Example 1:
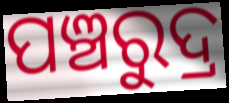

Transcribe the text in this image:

ପଞ୍ଚରୁଦ୍ର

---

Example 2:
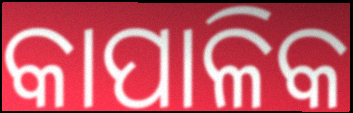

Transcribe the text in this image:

କାପାଳିକ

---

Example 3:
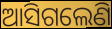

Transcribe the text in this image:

ଆସିଗଲେଣି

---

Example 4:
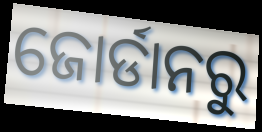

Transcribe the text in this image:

ଜୋର୍ଡାନରୁ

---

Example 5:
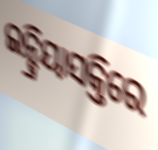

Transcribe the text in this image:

ଇନ୍ଦ୍ରିୟାସକ୍ତିରେ